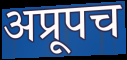
अप्रूपच